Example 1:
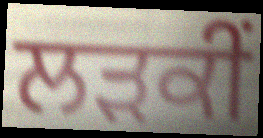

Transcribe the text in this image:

ਲੜਕੀਂ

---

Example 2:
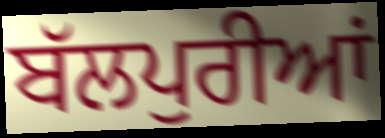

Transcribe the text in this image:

ਬੱਲਪੁਰੀਆਂ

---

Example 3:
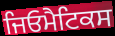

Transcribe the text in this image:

ਜਿਓਮੈਟਿਕਸ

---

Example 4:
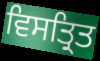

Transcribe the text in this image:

ਵਿਸਤ੍ਰਿਤ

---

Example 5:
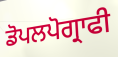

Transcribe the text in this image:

ਡੋਪਲਪੋਗ੍ਰਾਫੀ